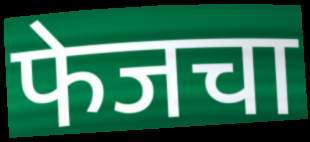
फेजचा